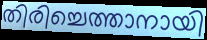
തിരിച്ചെത്താനായി